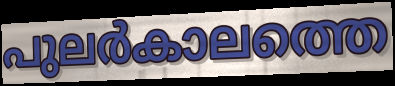
പുലർകാലത്തെ